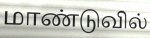
மாண்டுவில்